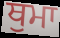
ਥੁਮਾ